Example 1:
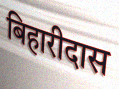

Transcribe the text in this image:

बिहारीदास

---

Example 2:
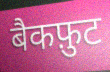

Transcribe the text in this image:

बैकफ़ुट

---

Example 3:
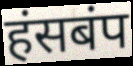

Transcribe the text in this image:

हंसबंप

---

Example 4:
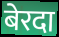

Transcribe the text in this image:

बेरदा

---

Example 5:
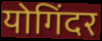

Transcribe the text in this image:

योगिंदर